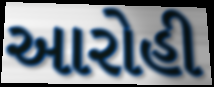
આરોહી